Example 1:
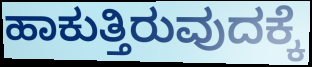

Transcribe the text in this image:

ಹಾಕುತ್ತಿರುವುದಕ್ಕೆ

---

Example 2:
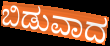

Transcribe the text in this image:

ಬಿಡುವಾದ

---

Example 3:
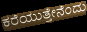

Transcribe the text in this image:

ಕರೆಯುತ್ತೇನೆಂದು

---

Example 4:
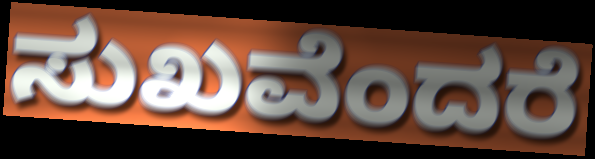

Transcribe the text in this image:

ಸುಖವೆಂದರೆ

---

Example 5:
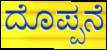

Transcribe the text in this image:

ದೊಪ್ಪನೆ